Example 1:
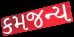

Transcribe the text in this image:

કમજન્ય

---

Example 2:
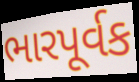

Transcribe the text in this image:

ભારપૂર્વક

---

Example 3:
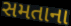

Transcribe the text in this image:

સમતાના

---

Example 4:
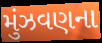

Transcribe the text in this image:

મુંઝવણના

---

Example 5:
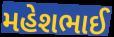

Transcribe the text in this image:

મહેશભાઈ